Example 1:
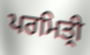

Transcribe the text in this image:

ਪਰਮਿਤ੍ਰੀ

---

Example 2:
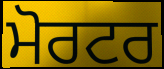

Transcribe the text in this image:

ਮੋਰਟਰ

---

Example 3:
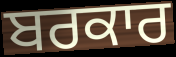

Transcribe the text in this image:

ਬਰਕਾਰ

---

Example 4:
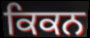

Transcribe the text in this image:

ਕਿਕਨ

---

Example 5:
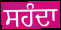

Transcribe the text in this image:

ਸਹੰਦਾ